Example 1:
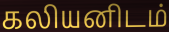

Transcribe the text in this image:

கலியனிடம்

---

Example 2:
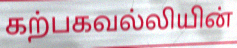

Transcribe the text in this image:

கற்பகவல்லியின்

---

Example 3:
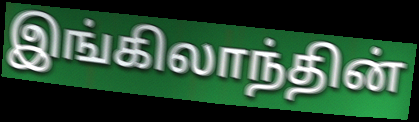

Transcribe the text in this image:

இங்கிலாந்தின்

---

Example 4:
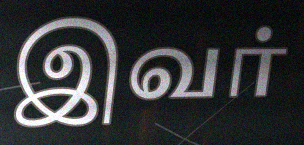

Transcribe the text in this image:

இவர்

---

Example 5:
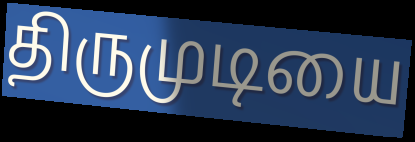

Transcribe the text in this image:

திருமுடியை